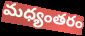
మధ్యంతరం